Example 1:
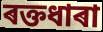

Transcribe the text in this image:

ৰক্তধাৰা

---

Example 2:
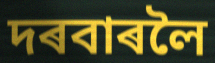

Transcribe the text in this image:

দৰবাৰলৈ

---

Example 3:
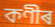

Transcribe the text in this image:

কণীৰ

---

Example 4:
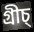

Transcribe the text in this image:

গ্ৰীচ্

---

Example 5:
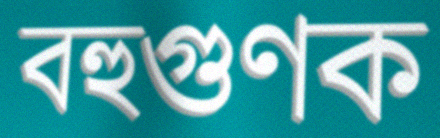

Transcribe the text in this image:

বহুগুণক